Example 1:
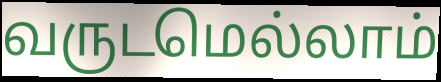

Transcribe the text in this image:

வருடமெல்லாம்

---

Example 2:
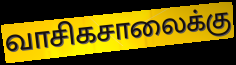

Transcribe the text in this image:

வாசிகசாலைக்கு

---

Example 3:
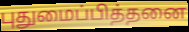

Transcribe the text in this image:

புதுமைப்பித்தனை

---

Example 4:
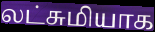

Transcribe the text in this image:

லட்சுமியாக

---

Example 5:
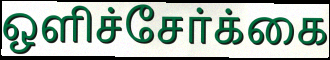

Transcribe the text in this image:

ஒளிச்சேர்க்கை